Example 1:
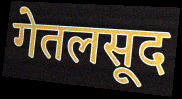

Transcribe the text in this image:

गेतलसूद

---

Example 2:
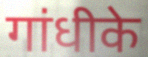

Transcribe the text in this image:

गांधीके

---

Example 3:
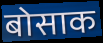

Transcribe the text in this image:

बोसाक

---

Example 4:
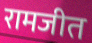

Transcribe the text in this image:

रामजीत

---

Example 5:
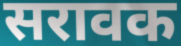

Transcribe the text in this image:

सरावक